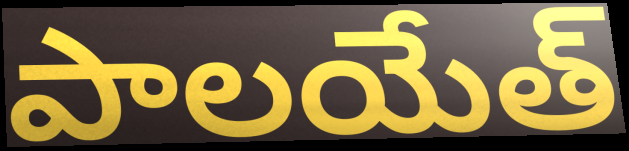
పాలయేత్